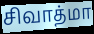
சிவாத்மா